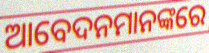
ଆବେଦନମାନଙ୍କରେ